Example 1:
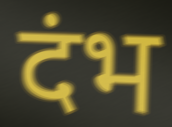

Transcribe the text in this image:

दंभ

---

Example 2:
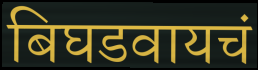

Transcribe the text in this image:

बिघडवायचं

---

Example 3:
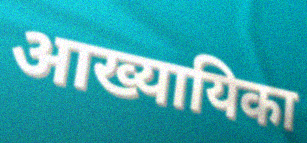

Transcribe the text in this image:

आख्यायिका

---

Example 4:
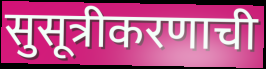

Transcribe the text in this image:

सुसूत्रीकरणाची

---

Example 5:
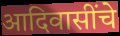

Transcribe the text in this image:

आदिवासींचे